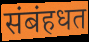
संबंहधत